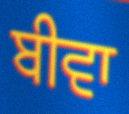
ਬੀਵਾ